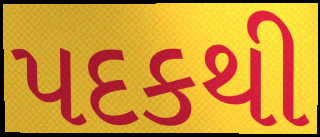
પદકથી